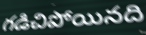
గడిచిపోయినది